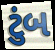
ટુંબ